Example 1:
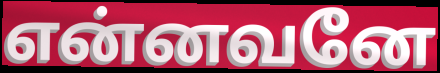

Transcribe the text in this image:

என்னவனே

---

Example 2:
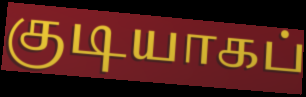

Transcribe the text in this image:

குடியாகப்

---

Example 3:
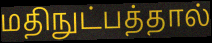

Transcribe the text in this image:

மதிநுட்பத்தால்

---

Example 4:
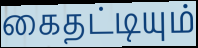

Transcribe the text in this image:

கைதட்டியும்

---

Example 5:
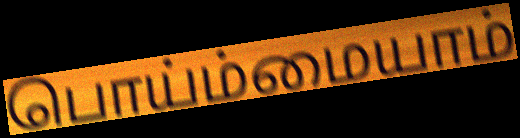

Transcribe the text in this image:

பொய்ம்மையாம்